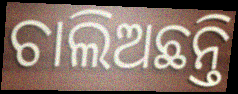
ଚାଲିଅଛନ୍ତି